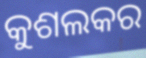
କୁଶଲକର